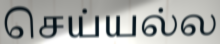
செய்யல்ல